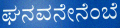
ಘನವನೇನೆಂಬೆ